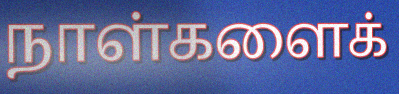
நாள்களைக்